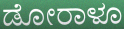
ಡೋರಾಳೂ